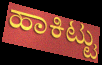
ಹಾಕಿಟ್ಟು